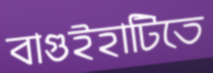
বাগুইহাটিতে